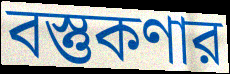
বস্তুকণার